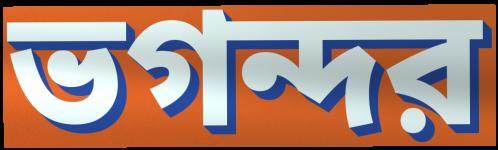
ভগন্দর